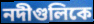
নদীগুলিকে